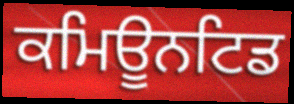
ਕਮਿਊਨਟਿਡ